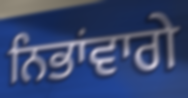
ਨਿਭਾਂਵਾਗੇ